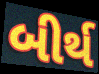
બીર્થ